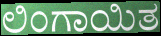
ಲಿಂಗಾಯಿತ